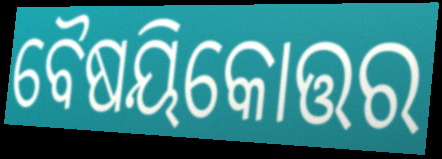
ବୈଷୟିକୋତ୍ତର